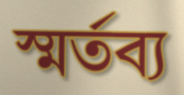
স্মর্তব্য